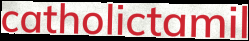
catholictamil